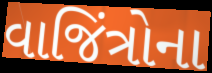
વાજિંત્રોના